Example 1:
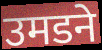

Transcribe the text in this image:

उमडने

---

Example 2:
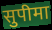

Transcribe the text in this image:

सुपीमा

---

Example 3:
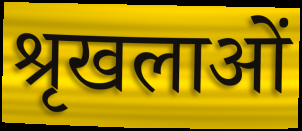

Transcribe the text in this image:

श्रृखलाओं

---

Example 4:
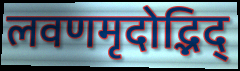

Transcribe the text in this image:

लवणमृदोद्भिद्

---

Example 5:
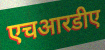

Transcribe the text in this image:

एचआरडीए